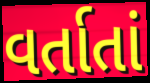
વર્તાતાં